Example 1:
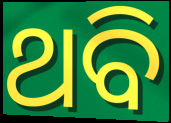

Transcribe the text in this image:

ଥବି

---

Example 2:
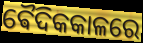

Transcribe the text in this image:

ଵୈଦିକକାଳରେ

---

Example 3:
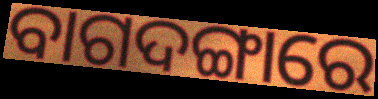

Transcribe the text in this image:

ବାଗଦଙ୍ଗାରେ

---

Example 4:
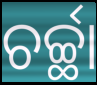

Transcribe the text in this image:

ଚର୍ଚ୍ଛା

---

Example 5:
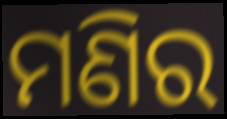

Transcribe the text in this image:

ମଣିର